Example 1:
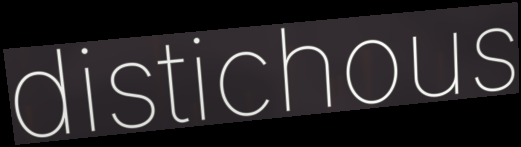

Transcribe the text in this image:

distichous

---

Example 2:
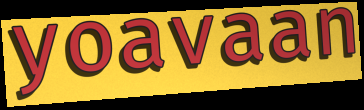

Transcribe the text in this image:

yoavaan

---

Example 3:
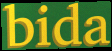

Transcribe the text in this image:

bida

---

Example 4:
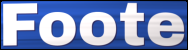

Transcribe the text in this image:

Foote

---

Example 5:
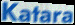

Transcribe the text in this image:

Katara